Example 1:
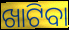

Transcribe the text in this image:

ଖାଟିବା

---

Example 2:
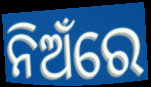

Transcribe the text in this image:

ନିଅଁରେ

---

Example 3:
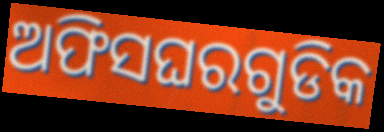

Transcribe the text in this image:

ଅଫିସଘରଗୁଡିକ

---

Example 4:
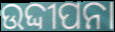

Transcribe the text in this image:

ଉଦ୍ଦୀପନା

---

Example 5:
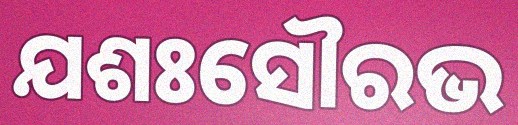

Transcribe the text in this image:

ଯଶଃସୌରଭ